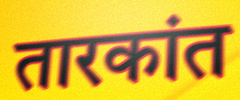
तारकांत